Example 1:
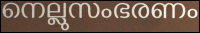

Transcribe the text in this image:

നെല്ലുസംഭരണം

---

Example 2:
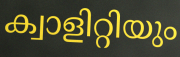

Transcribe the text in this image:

ക്വാളിറ്റിയും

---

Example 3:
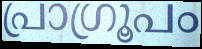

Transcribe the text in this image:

പ്രാഗ്രൂപം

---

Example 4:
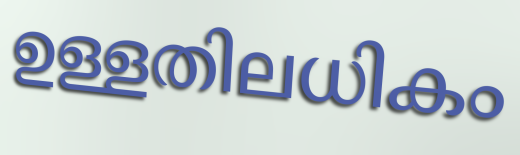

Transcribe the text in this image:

ഉള്ളതിലധികം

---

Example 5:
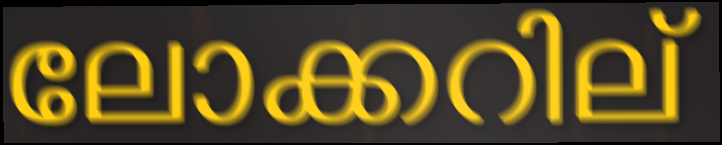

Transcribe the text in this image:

ലോക്കറില്